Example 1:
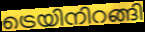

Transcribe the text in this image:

ട്രെയിനിറങ്ങി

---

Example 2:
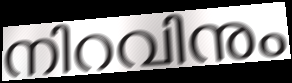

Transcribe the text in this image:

നിറവിനും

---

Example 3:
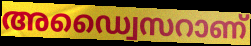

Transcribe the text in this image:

അഡ്വൈസറാണ്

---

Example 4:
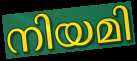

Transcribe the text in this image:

നിയമി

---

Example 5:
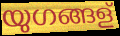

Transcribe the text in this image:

യുഗങ്ങള്